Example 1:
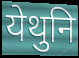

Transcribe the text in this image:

येथुनि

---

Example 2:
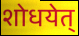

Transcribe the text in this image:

शोधयेत्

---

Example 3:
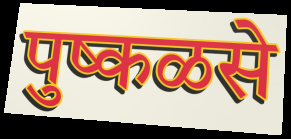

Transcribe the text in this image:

पुष्कळसे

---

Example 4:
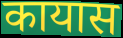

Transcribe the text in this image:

कायास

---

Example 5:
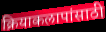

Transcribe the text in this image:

क्रियाकलापांसाठी